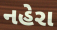
નહેરા